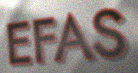
EFAS